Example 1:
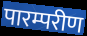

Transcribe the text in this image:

पारम्परीण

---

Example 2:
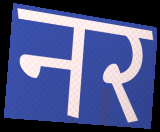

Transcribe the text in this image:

नर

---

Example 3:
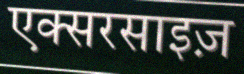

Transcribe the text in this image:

एक्सरसाइज़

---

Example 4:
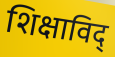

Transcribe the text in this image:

शिक्षाविद्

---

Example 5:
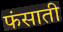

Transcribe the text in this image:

फंसाती